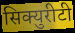
सिक्युरीटी